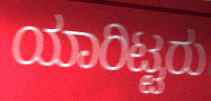
ಯಾರಿಟ್ಟರು